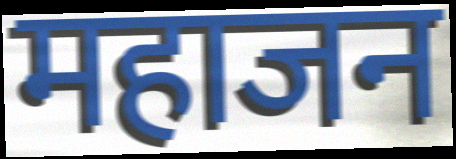
महाजन